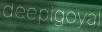
deepigoyal